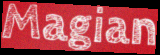
Magian